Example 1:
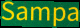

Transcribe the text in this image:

Sampa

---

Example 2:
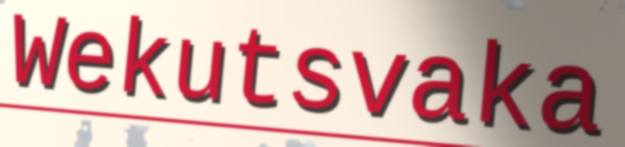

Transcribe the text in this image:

Wekutsvaka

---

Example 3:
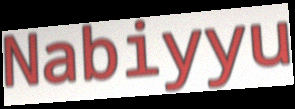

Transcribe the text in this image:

Nabiyyu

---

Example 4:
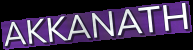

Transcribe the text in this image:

AKKANATH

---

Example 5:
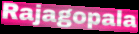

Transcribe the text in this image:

Rajagopala